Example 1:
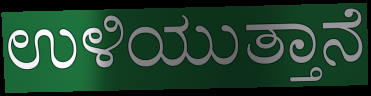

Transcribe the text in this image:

ಉಳಿಯುತ್ತಾನೆ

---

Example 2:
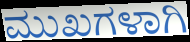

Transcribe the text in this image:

ಮುಖಗಳಾಗಿ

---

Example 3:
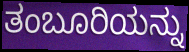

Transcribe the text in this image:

ತಂಬೂರಿಯನ್ನು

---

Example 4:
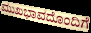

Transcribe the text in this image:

ಮುಖಭಾವದೊಂದಿಗೆ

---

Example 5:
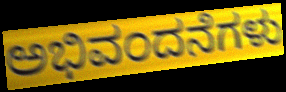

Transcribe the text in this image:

ಅಭಿವಂದನೆಗಳು